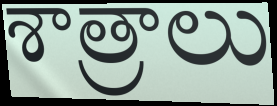
శాత్రాలు